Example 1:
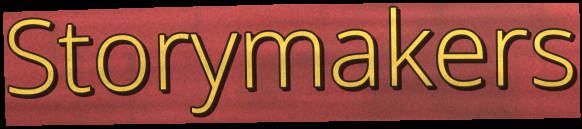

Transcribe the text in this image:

Storymakers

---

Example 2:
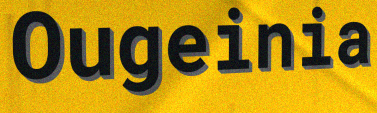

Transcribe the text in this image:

Ougeinia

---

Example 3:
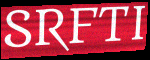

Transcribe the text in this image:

SRFTI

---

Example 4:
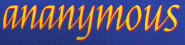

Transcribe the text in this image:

ananymous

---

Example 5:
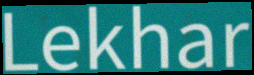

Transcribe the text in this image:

Lekhar